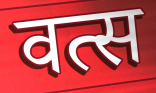
वत्स